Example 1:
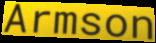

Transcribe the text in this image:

Armson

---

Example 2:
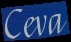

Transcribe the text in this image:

Ceva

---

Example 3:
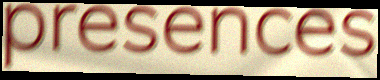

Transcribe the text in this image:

presences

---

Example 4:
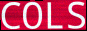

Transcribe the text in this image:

COLS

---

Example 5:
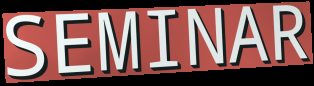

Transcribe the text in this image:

SEMINAR